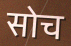
सोच